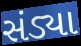
સંડ્યા